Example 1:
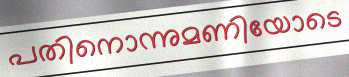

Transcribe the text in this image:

പതിനൊന്നുമണിയോടെ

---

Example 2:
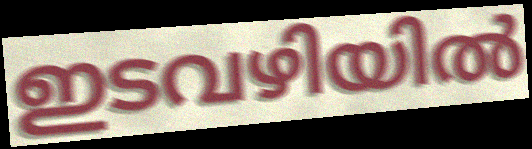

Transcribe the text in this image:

ഇടവഴിയിൽ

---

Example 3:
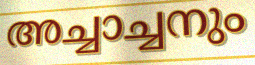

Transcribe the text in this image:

അച്ചാച്ചനും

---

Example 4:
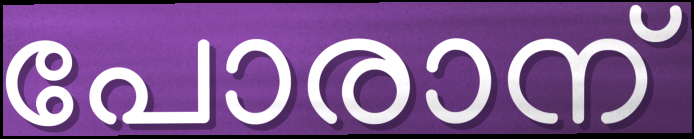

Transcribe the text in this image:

പോരാന്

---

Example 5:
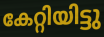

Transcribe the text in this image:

കേറ്റിയിട്ടു